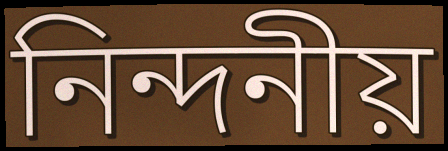
নিন্দনীয়